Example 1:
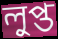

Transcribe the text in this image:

লুপ্ত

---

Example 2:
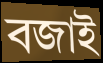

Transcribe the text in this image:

বজাই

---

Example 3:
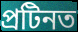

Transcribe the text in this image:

প্ৰটিনত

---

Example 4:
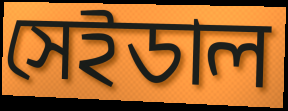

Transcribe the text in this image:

সেইডাল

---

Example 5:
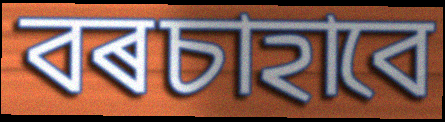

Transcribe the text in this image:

বৰচাহাবে